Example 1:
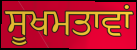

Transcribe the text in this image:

ਸੂਖਮਤਾਵਾਂ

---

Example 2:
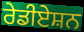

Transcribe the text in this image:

ਰੇਡੀਏਸ਼ਨ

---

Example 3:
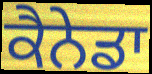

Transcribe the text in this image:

ਕੈਨੇਡਾ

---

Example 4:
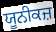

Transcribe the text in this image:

ਯੂਨੀਕਜ਼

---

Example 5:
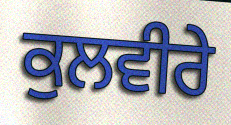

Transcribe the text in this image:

ਕੁਲਵੀਰੇ